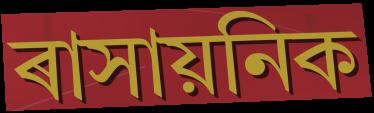
ৰাসায়নিক